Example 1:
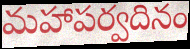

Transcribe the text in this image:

మహాపర్వదినం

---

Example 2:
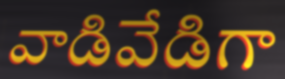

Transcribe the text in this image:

వాడివేడిగా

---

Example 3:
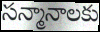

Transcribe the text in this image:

సన్మానాలకు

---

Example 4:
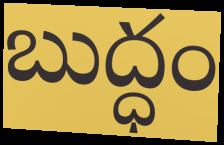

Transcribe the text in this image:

బుద్ధం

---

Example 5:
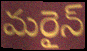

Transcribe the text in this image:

మరైన్